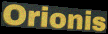
Orionis